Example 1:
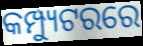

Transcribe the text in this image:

କମ୍ପ୍ୟୁଟରରେ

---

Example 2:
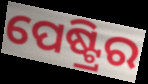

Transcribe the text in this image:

ପେଷ୍ଟ୍ରିର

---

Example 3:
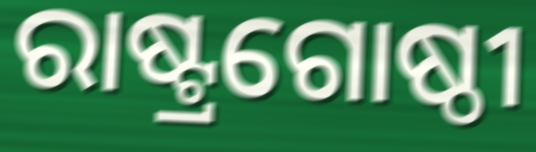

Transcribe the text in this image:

ରାଷ୍ଟ୍ରଗୋଷ୍ଠୀ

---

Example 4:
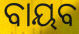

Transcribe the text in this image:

ବାୟବ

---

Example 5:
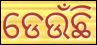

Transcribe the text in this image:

ଡେଉଁଛି